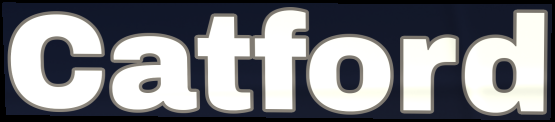
Catford